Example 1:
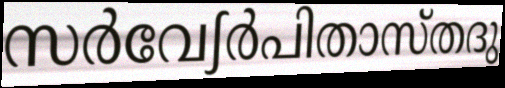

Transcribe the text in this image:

സർവേഽർപിതാസ്തദു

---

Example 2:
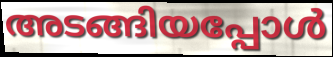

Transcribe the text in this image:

അടങ്ങിയപ്പോൾ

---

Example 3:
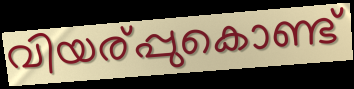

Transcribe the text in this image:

വിയര്പ്പുകൊണ്ട്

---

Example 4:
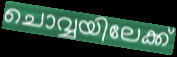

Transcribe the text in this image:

ചൊവ്വയിലേക്ക്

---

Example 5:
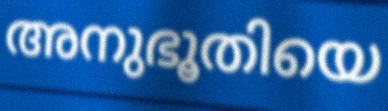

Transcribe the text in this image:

അനുഭൂതിയെ